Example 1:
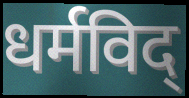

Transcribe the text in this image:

धर्मविद्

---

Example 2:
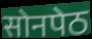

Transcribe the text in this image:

सोनपेठ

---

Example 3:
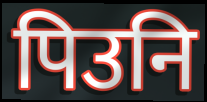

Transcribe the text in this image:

पिउनि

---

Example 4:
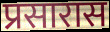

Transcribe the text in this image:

प्रसारास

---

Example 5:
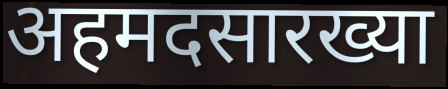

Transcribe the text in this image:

अहमदसारख्या